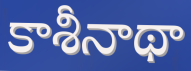
కాశీనాథా